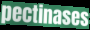
pectinases